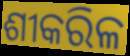
ଶୀକରିଳ